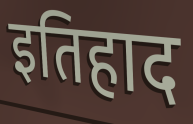
इतिहाद